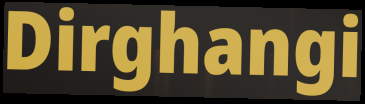
Dirghangi